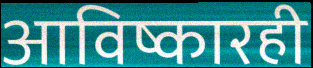
आविष्कारही